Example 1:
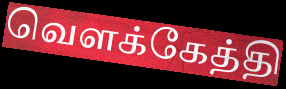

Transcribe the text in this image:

வெளக்கேத்தி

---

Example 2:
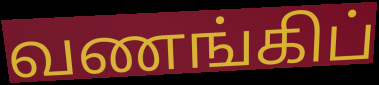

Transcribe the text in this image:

வணங்கிப்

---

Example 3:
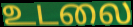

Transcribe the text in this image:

உடலை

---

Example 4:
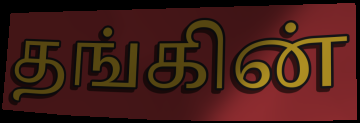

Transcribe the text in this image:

தங்கின்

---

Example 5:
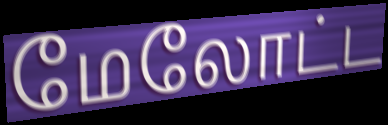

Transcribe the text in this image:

மேலோட்ட